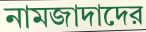
নামজাদাদের